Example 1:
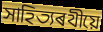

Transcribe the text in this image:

সাহিত্যৰথীয়ে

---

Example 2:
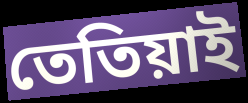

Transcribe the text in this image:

তেতিয়াই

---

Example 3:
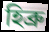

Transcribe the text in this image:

হিব্ৰু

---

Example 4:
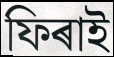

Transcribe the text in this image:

ফিৰাই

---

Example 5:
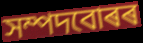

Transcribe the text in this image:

সম্পদবোৰৰ